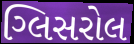
ગ્લિસરોલ